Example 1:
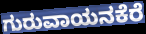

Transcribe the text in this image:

ಗುರುವಾಯನಕೆರೆ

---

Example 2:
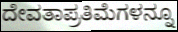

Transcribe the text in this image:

ದೇವತಾಪ್ರತಿಮೆಗಳನ್ನೂ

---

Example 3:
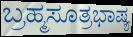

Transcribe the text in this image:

ಬ್ರಹ್ಮಸೂತ್ರಭಾಷ್ಯ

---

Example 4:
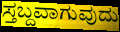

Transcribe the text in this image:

ಸ್ತಬ್ದವಾಗುವುದು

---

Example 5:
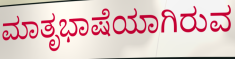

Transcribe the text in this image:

ಮಾತೃಭಾಷೆಯಾಗಿರುವ